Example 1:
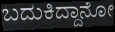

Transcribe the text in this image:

ಬದುಕಿದ್ದಾನೋ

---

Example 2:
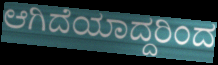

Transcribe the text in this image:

ಆಗಿದೆಯಾದ್ದರಿಂದ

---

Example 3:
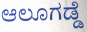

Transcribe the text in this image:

ಆಲೂಗಡ್ಡೆ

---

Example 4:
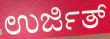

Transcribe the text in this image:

ಉರ್ಜಿತ್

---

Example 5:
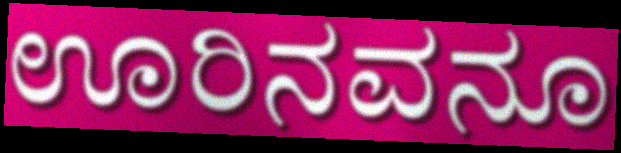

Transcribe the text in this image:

ಊರಿನವನೂ